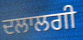
ਦਲਾਲਗੀ